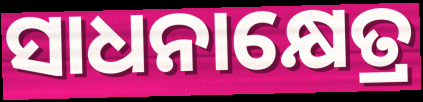
ସାଧନାକ୍ଷେତ୍ର